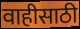
वाहीसाठी